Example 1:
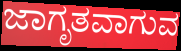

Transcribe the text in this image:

ಜಾಗೃತವಾಗುವ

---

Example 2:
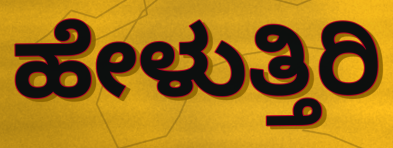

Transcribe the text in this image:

ಹೇಳುತ್ತಿರಿ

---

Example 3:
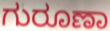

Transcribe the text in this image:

ಗುರೂಣಾ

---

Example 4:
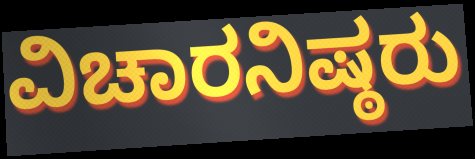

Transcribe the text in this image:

ವಿಚಾರನಿಷ್ಠರು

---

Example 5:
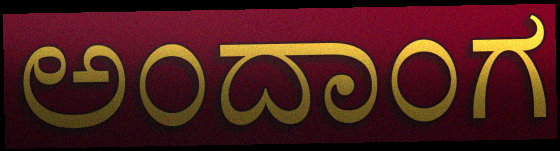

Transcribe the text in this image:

ಅಂದಾಂಗ